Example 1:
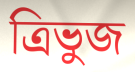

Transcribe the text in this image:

ত্রিভুজ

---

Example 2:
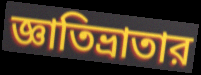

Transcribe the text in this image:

জ্ঞাতিভ্রাতার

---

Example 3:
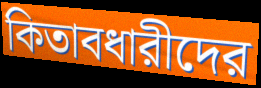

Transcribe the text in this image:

কিতাবধারীদের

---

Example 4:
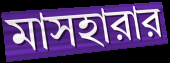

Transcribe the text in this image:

মাসহারার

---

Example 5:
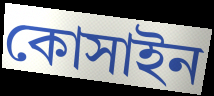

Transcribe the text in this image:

কোসাইন